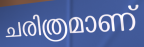
ചരിത്രമാണ്